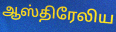
ஆஸ்திரேலிய